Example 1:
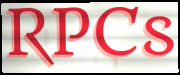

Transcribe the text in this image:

RPCs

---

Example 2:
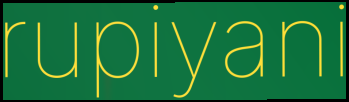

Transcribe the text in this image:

rupiyani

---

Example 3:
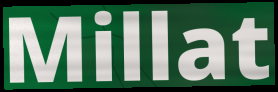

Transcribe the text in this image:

Millat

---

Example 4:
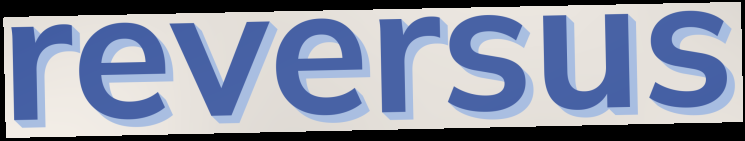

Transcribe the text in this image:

reversus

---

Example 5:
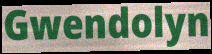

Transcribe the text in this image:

Gwendolyn